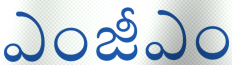
ఎంజీఎం